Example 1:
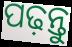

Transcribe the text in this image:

ପଢ଼ନ୍ତୁ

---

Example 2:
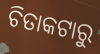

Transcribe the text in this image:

ଚିତାକଟାରୁ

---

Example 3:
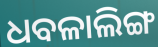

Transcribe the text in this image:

ଧବଳାଲିଙ୍ଗ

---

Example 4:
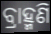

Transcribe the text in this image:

ବ୍ରାହ୍ମଣି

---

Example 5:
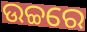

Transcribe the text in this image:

ଉଚ୍ଚରେ